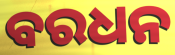
ବରଧନ